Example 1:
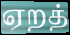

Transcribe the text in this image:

ஏறத்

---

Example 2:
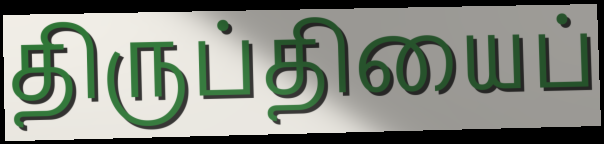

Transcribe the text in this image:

திருப்தியைப்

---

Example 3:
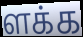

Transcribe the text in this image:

ளக்க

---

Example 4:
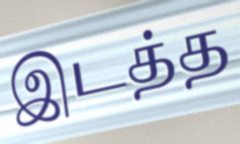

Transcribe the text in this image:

இடத்த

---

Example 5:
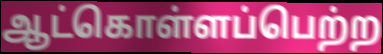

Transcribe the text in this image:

ஆட்கொள்ளப்பெற்ற